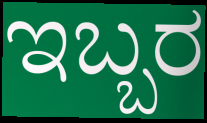
ಇಬ್ಬರ